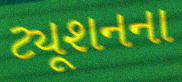
ટ્યૂશનના